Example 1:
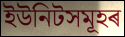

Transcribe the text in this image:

ইউনিটসমূহৰ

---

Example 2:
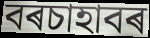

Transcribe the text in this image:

বৰচাহাবৰ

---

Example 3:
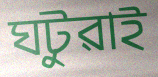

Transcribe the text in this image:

ঘটুৱাই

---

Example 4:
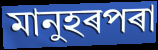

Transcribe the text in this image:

মানুহৰপৰা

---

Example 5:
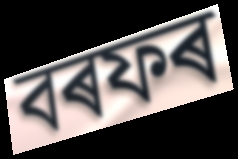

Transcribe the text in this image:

বৰফৰ